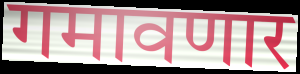
गमावणार